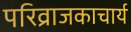
परिव्राजकाचार्य